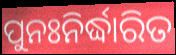
ପୁନଃନିର୍ଦ୍ଧାରିତ